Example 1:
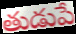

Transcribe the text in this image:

తుడుపే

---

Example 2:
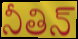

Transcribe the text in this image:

నీతిన్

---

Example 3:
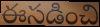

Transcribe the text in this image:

ఈసడించి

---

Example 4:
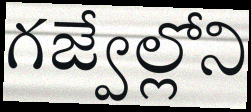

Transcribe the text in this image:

గజ్వేల్లోని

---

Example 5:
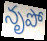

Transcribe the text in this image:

నృపో